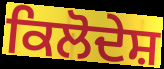
ਕਿਲੋਦੇਸ਼